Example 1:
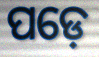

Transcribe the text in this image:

ପଡ଼େ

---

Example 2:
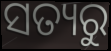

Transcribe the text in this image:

ସତ୍ୟରୁ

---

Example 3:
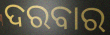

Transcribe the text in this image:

ଦରବାର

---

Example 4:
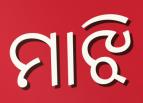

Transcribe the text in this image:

ମାଝି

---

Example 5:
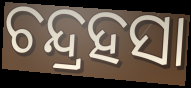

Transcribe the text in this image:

ଚନ୍ଦ୍ରହସା